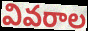
వివరాల